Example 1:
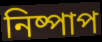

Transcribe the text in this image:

নিষ্পাপ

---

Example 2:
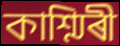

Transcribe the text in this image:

কাশ্মিৰী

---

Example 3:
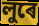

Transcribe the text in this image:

লুৰে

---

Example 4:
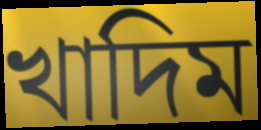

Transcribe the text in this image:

খাদিম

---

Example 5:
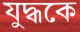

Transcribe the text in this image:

যুদ্ধকে